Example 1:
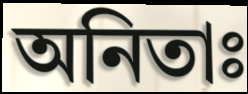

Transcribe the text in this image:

অনিতাঃ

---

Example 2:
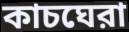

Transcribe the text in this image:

কাচঘেরা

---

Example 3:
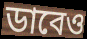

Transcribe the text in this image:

ডাবেও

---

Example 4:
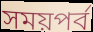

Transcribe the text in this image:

সময়পর্ব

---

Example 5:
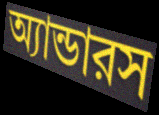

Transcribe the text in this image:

অ্যান্ডারস